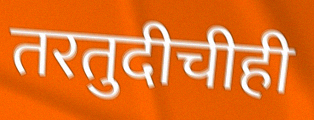
तरतुदीचीही